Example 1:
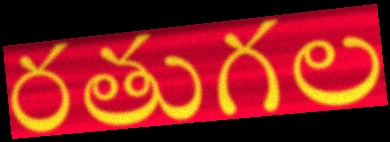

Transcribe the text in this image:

రతుగల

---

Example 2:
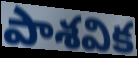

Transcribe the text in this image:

పాశవిక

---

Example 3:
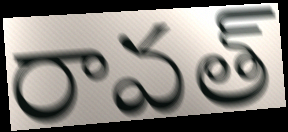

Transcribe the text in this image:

రావత్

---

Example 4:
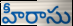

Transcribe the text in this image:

హీరాసు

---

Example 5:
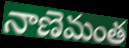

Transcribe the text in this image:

నాణెమంత